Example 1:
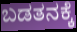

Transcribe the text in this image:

ಬಡತನಕ್ಕೆ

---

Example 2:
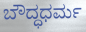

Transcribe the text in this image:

ಬೌದ್ಧಧರ್ಮ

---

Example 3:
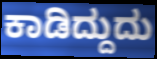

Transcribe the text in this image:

ಕಾಡಿದ್ದುದು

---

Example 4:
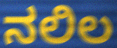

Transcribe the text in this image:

ನಲಿಲ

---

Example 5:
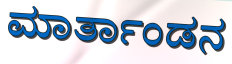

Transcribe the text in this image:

ಮಾರ್ತಾಂಡನ